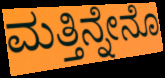
ಮತ್ತಿನ್ನೇನೊ